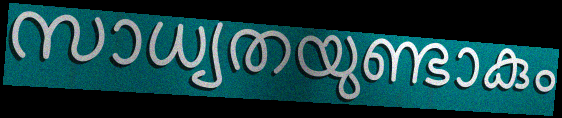
സാധ്യതയുണ്ടാകും